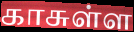
காசுள்ள